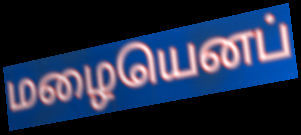
மழையெனப்